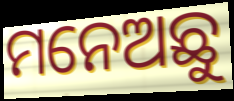
ମନେଅଛୁ